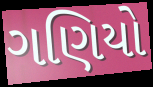
ગણિયો